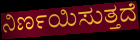
ನಿರ್ಣಯಿಸುತ್ತದೆ